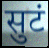
सुटं